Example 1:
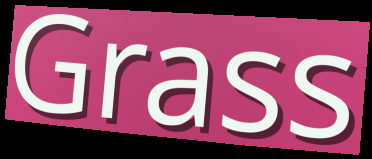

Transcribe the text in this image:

Grass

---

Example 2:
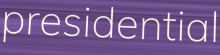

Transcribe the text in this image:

presidential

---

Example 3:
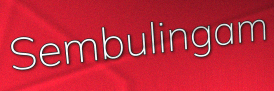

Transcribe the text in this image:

Sembulingam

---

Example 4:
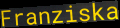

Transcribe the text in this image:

Franziska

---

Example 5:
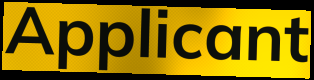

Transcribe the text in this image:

Applicant